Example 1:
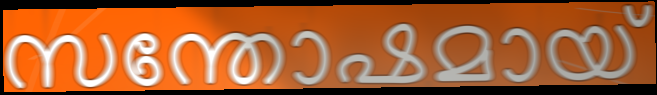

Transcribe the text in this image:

സന്തോഷമായ്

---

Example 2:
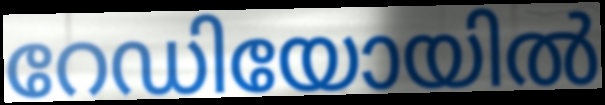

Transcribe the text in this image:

റേഡിയോയിൽ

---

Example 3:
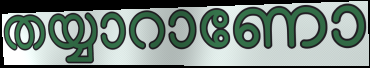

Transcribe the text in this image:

തയ്യാറാണോ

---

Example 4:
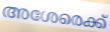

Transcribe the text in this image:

അശേരെക്ക്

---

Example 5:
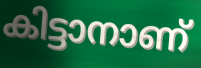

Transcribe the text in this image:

കിട്ടാനാണ്